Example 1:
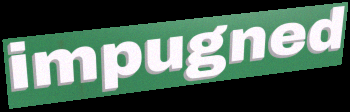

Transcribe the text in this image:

impugned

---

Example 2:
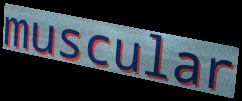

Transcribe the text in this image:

muscular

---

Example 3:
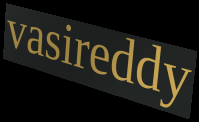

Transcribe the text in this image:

vasireddy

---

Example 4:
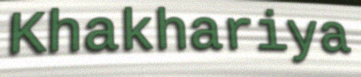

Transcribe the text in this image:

Khakhariya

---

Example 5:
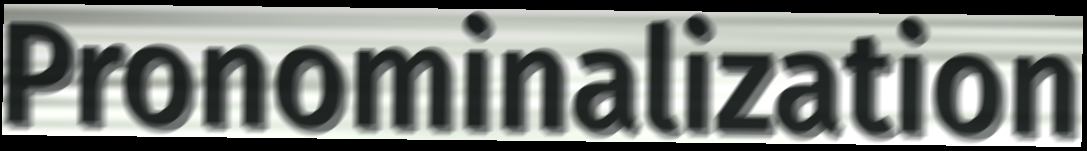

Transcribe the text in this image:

Pronominalization